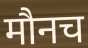
मौनच